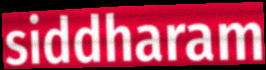
siddharam